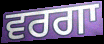
ਵਰਗਾ